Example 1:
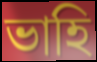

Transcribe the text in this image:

ভাহি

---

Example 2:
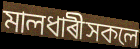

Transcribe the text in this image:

মালধাৰীসকলে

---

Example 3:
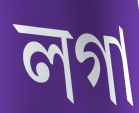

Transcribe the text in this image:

লগা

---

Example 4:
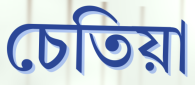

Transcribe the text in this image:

চেতিয়া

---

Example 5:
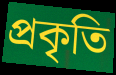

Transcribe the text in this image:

প্ৰকৃতি